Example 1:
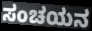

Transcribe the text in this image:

ಸಂಚಯನ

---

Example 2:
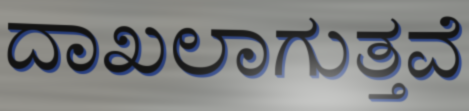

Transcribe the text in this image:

ದಾಖಲಾಗುತ್ತವೆ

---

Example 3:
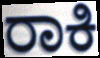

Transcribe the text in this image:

ರಾಕಿ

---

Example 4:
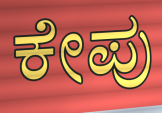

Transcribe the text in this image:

ಕೇಪು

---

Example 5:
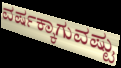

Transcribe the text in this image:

ವರ್ಷಕ್ಕಾಗುವಷ್ಟು